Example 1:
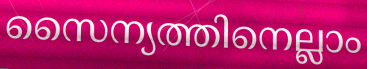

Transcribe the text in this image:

സൈന്യത്തിനെല്ലാം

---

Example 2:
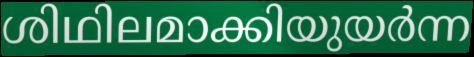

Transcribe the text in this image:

ശിഥിലമാക്കിയുയർന്ന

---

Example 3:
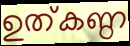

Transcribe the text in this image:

ഉത്കണ്ഠ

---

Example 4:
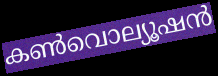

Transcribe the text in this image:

കൺവൊല്യൂഷൻ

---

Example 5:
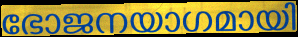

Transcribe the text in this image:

ഭോജനയാഗമായി